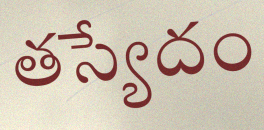
తస్యేదం